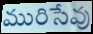
మురిసేవు